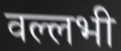
वल्लभी